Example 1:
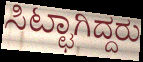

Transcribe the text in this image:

ಸಿಟ್ಟಾಗಿದ್ದರು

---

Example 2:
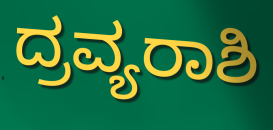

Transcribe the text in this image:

ದ್ರವ್ಯರಾಶಿ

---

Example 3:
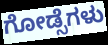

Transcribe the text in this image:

ಗೋಡ್ಸೆಗಳು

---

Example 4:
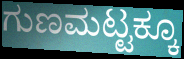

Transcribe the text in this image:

ಗುಣಮಟ್ಟಕ್ಕೂ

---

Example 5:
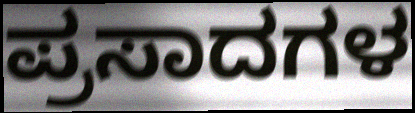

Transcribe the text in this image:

ಪ್ರಸಾದಗಳ